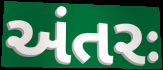
અંતરઃ